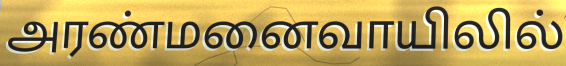
அரண்மனைவாயிலில்